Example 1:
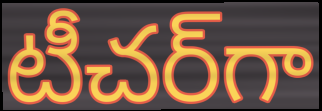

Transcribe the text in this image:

టీచర్‌గా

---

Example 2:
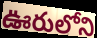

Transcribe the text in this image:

ఊరులోని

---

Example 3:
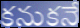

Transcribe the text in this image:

కనుకనే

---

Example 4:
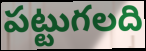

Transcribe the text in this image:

పట్టుగలది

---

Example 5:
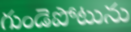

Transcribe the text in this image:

గుండెపోటును